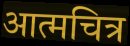
आत्मचित्र